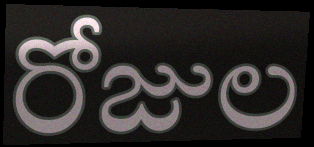
రోజుల